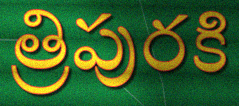
త్రిపురకి